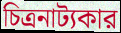
চিত্রনাট্যকার